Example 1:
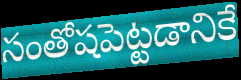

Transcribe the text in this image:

సంతోషపెట్టడానికే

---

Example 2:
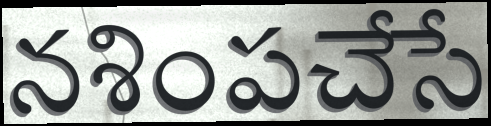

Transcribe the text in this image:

నశింపచేసే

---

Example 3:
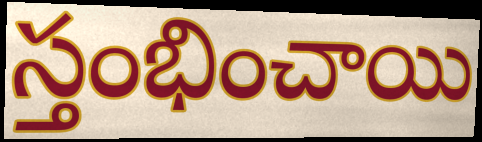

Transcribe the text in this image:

స్తంభించాయి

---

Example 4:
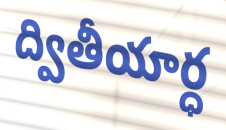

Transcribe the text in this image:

ద్వితీయార్ధ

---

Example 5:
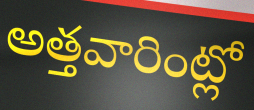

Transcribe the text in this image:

అత్తవారింట్లో